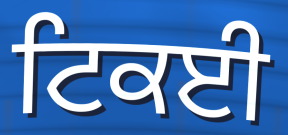
ਟਿਕਈ